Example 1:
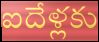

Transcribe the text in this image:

ఐదేళ్లకు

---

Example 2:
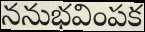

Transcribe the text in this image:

ననుభవింపక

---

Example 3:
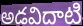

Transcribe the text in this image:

అడవిదాటి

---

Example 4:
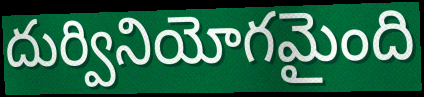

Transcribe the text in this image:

దుర్వినియోగమైంది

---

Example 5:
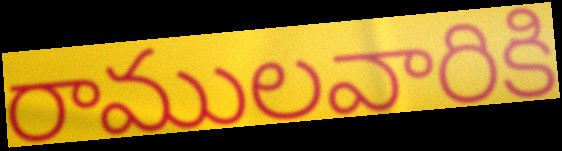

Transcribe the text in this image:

రాములవారికి